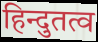
हिन्दुतत्व